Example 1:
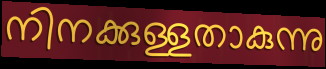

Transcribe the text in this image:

നിനക്കുള്ളതാകുന്നു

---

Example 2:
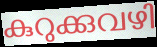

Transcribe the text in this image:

കുറുക്കുവഴി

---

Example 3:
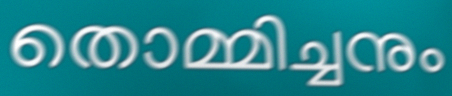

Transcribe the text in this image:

തൊമ്മിച്ചനും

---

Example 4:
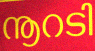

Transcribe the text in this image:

നൂറടി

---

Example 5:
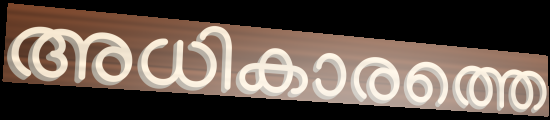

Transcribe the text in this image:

അധികാരത്തെ